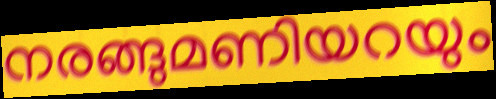
നരങ്ങുമണിയറയും